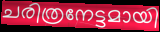
ചരിത്രനേട്ടമായി